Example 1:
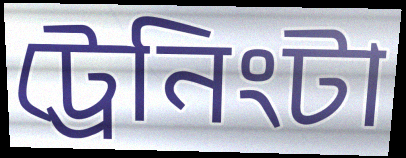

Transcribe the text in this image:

ট্রেনিংটা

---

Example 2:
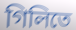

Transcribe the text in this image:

গিলিতে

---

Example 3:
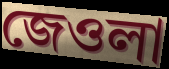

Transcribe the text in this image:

জেওলা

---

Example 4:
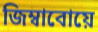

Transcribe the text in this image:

জিম্বাবোয়ে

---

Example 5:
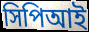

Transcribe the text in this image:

সিপিআই